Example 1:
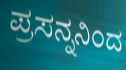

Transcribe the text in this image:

ಪ್ರಸನ್ನನಿಂದ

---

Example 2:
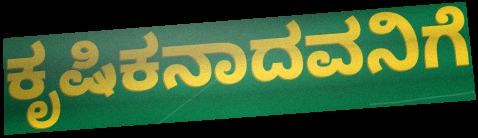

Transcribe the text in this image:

ಕೃಷಿಕನಾದವನಿಗೆ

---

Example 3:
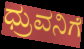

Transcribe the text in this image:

ಧ್ರುವನಿಗೆ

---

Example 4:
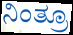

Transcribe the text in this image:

ನಿಂತ್ರೂ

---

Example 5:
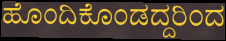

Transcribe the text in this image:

ಹೊಂದಿಕೊಂಡದ್ದರಿಂದ